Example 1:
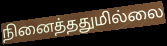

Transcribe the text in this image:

நினைத்ததுமில்லை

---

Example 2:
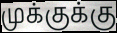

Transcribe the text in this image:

முக்குக்கு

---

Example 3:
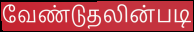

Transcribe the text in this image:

வேண்டுதலின்படி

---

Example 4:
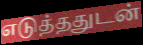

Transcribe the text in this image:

எடுத்ததுடன்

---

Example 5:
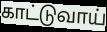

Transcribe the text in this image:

காட்டுவாய்